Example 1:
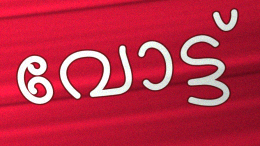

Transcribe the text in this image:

വോട്ട്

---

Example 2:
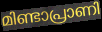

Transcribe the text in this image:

മിണ്ടാപ്രാണി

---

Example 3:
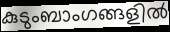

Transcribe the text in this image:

കുടുംബാംഗങ്ങളിൽ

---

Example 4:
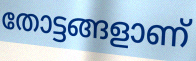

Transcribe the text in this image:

തോട്ടങ്ങളാണ്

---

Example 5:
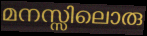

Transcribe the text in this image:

മനസ്സിലൊരു